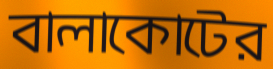
বালাকোটের